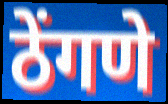
ठेंगणे